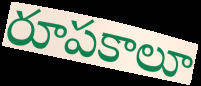
రూపకాలూ